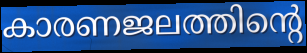
കാരണജലത്തിന്റെ